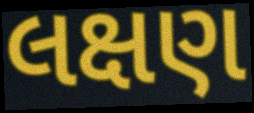
લક્ષણ